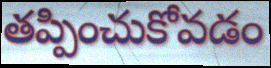
తప్పించుకోవడం